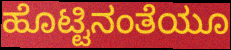
ಹೊಟ್ಟಿನಂತೆಯೂ